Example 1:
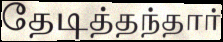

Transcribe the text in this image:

தேடித்தந்தார்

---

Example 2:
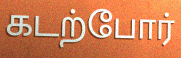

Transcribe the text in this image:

கடற்போர்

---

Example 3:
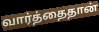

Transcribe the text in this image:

வார்த்தைதான்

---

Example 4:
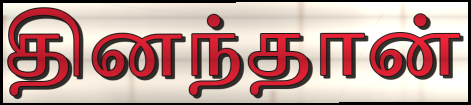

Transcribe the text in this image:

தினந்தான்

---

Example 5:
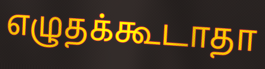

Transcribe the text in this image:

எழுதக்கூடாதா